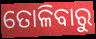
ତୋଳିବାରୁ